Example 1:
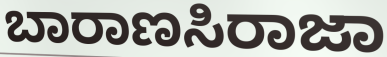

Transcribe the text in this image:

ಬಾರಾಣಸಿರಾಜಾ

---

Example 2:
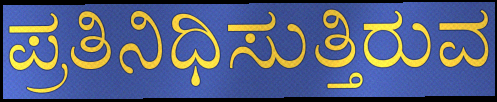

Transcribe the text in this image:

ಪ್ರತಿನಿಧಿಸುತ್ತಿರುವ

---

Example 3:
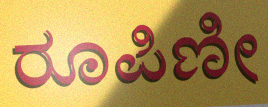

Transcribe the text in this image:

ರೂಪಿಣೀ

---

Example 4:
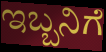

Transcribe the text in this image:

ಇಬ್ಬನಿಗೆ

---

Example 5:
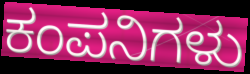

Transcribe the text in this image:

ಕಂಪನಿಗಳು